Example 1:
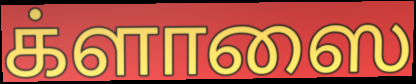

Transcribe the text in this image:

க்ளாஸை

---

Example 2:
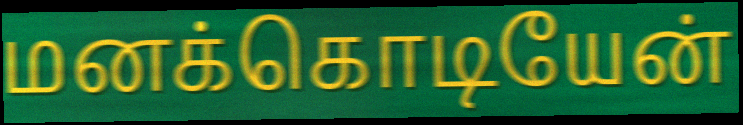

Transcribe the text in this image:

மனக்கொடியேன்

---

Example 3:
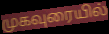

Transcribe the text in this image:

முகவுரையில்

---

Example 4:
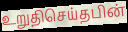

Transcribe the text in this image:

உறுதிசெய்தபின்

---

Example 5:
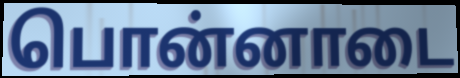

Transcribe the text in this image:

பொன்னாடை